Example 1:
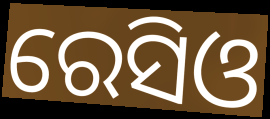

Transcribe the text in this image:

ରେସିଓ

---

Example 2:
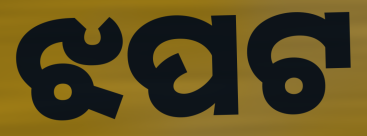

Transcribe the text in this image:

ଝପଟ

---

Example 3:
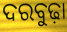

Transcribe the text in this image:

ଦରବୁଢ଼ା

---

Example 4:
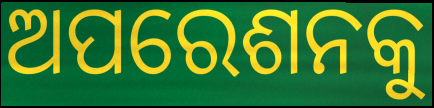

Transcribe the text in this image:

ଅପରେଶନକୁ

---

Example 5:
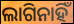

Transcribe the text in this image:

ଲାଗିନାହିଁ